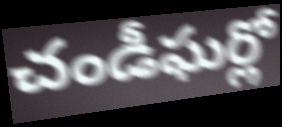
చండీఘర్లో